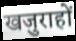
खजुराहों